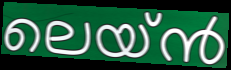
ലെയ്ൻ